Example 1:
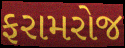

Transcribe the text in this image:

ફરામરોજ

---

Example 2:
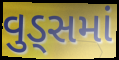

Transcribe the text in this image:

વુડ્સમાં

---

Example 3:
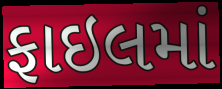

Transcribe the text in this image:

ફાઇલમાં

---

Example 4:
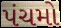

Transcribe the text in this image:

પંચમો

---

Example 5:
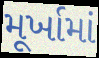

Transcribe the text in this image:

મૂર્ખામાં